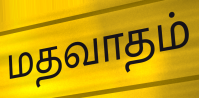
மதவாதம்